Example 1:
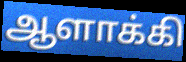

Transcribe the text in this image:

ஆளாக்கி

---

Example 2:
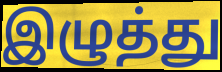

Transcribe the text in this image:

இழுத்து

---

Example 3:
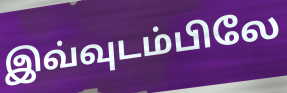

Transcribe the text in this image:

இவ்வுடம்பிலே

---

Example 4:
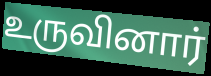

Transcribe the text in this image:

உருவினார்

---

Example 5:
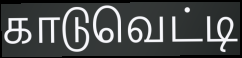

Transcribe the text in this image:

காடுவெட்டி